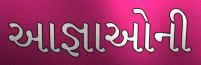
આજ્ઞાઓની